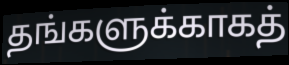
தங்களுக்காகத்